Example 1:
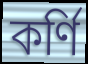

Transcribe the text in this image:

কর্ণি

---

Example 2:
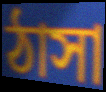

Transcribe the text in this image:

ঠাসা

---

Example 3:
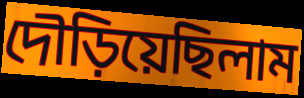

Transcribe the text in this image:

দৌড়িয়েছিলাম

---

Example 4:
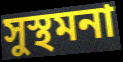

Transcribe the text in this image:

সুস্থমনা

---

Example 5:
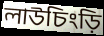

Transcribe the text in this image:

লাউচিংড়ি